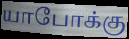
யாபோக்கு